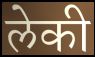
लेकी